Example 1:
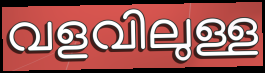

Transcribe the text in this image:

വളവിലുള്ള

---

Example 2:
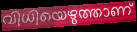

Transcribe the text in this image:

വിധിയെഴുത്താണ്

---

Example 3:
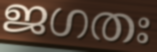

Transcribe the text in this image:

ജഗതഃ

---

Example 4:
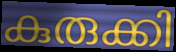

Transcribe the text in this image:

കുരുക്കി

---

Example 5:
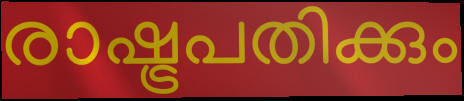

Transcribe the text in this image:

രാഷ്ട്രപതിക്കും